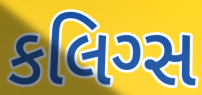
કલિગ્સ